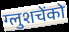
ग्लुशचेंको